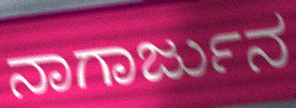
ನಾಗಾರ್ಜುನ